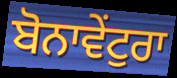
ਬੋਨਾਵੇਂਟੁਰਾ